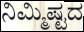
ನಿಮ್ಮಿಷ್ಟದ